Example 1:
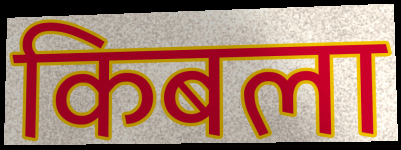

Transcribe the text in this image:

किबला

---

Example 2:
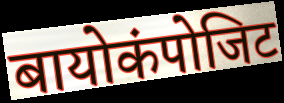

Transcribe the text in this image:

बायोकंपोजिट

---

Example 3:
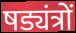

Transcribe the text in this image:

षड्यंत्रों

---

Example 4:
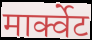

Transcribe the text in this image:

मार्क्वेट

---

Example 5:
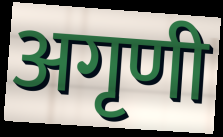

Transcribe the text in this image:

अगृणी